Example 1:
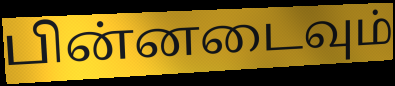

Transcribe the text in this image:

பின்னடைவும்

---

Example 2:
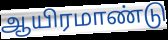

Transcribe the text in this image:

ஆயிரமாண்டு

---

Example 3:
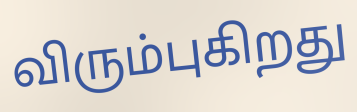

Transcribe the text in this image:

விரும்புகிறது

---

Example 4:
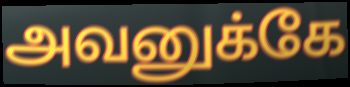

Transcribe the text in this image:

அவனுக்கே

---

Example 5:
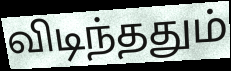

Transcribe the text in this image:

விடிந்ததும்